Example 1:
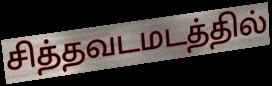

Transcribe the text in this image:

சித்தவடமடத்தில்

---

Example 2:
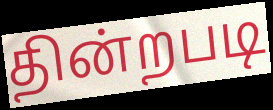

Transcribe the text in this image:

தின்றபடி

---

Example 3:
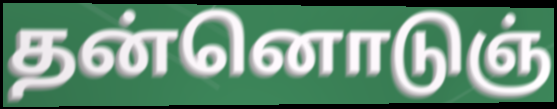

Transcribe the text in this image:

தன்னொடுஞ்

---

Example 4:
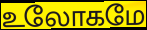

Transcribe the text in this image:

உலோகமே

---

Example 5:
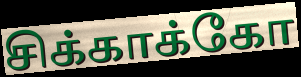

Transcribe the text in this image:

சிக்காக்கோ